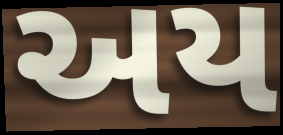
અય